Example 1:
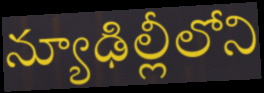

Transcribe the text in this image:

న్యూఢిల్లీలోని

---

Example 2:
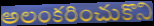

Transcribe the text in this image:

అలంకరించుకొని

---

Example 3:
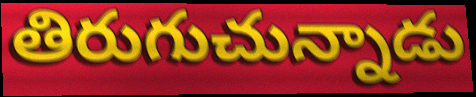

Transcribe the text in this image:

తిరుగుచున్నాడు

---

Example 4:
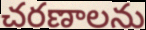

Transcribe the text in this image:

చరణాలను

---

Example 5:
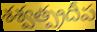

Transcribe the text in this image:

శశ్వత్ప్రదీప